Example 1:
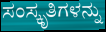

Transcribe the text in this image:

ಸಂಸ್ಕೃತಿಗಳನ್ನು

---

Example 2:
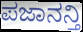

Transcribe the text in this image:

ಪಜಾನನ್ತಿ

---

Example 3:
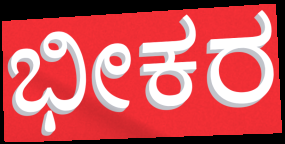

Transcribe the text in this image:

ಭೀಕರ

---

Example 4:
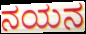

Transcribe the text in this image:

ನಯನ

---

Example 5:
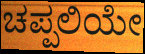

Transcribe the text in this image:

ಚಪ್ಪಲಿಯೇ